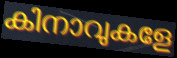
കിനാവുകളേ